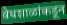
वेधशाळांकडून